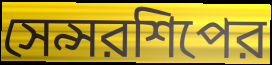
সেন্সরশিপের